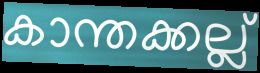
കാന്തക്കല്ല്